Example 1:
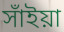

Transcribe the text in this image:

সাঁইয়া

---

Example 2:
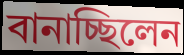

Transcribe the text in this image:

বানাচ্ছিলেন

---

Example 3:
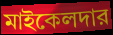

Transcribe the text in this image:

মাইকেলদার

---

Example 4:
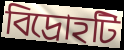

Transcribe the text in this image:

বিদ্রোহটি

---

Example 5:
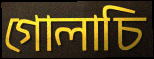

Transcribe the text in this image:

গোলাচি